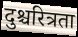
दुश्चरित्रता